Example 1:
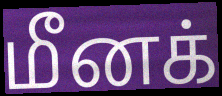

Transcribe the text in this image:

மீனக்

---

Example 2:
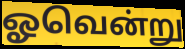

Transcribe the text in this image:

ஓவென்று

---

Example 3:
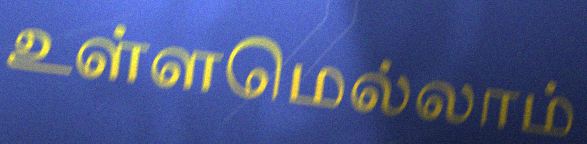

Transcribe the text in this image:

உள்ளமெல்லாம்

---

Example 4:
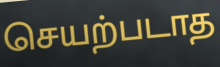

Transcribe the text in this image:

செயற்படாத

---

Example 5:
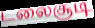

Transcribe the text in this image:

டலைசூடி